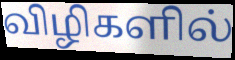
விழிகளில்